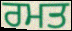
ਰਮਤ